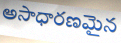
అసాధారణమైన